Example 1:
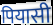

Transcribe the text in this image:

पियासी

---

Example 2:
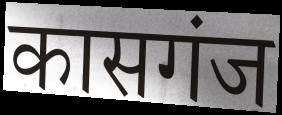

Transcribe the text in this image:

कासगंज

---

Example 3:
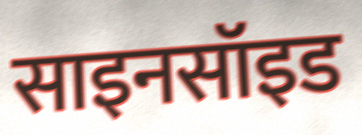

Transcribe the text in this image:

साइनसॉइड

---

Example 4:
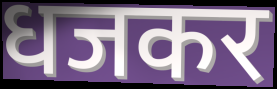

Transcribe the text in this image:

धजकर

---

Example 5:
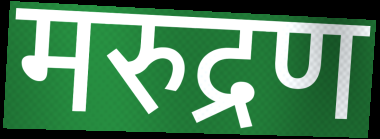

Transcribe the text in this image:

मरुद्रण